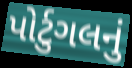
પોર્ટુગલનું